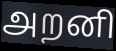
அறனி